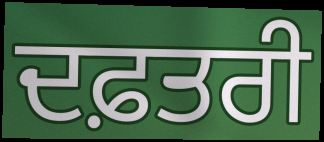
ਦਫ਼ਤਰੀ